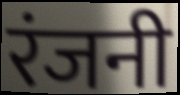
रंजनी